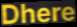
Dhere